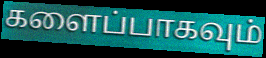
களைப்பாகவும்